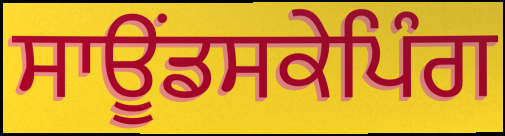
ਸਾਊਂਡਸਕੇਪਿੰਗ